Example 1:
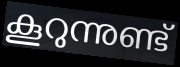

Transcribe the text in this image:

കൂറുന്നുണ്ട്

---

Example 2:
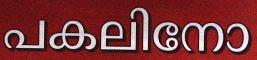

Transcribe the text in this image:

പകലിനോ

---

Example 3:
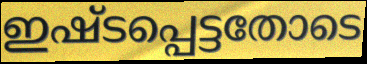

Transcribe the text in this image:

ഇഷ്ടപ്പെട്ടതോടെ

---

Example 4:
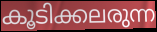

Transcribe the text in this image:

കൂടിക്കലരുന്ന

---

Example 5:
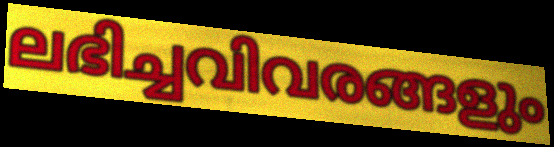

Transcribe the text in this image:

ലഭിച്ചവിവരങ്ങളും